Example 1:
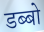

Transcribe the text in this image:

डब्बो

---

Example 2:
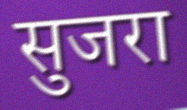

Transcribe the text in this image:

सुजरा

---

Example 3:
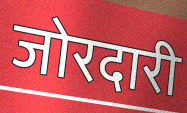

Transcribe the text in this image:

जोरदारी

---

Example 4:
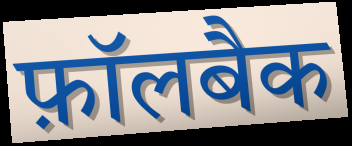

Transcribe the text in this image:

फ़ॉलबैक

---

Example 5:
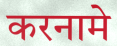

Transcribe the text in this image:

करनामे